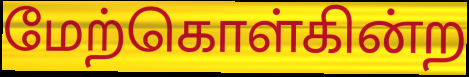
மேற்கொள்கின்ற